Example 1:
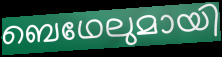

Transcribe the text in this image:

ബെഥേലുമായി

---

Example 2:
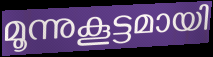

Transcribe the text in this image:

മൂന്നുകൂട്ടമായി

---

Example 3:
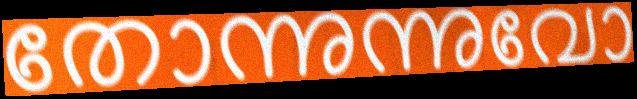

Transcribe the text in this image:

തോന്നുന്നുവോ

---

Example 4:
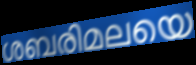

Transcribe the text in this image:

ശബരിമലയെ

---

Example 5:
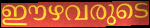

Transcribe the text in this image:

ഈഴവരുടെ